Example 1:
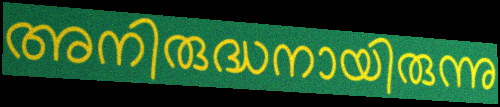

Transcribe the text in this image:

അനിരുദ്ധനായിരുന്നു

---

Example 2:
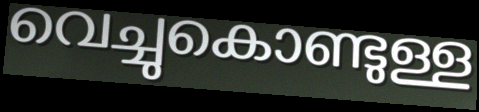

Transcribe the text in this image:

വെച്ചുകൊണ്ടുള്ള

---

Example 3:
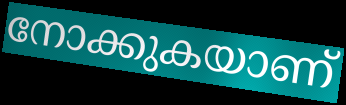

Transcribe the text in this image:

നോക്കുകയാണ്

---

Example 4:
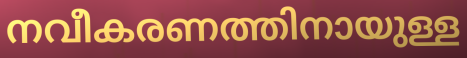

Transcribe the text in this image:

നവീകരണത്തിനായുള്ള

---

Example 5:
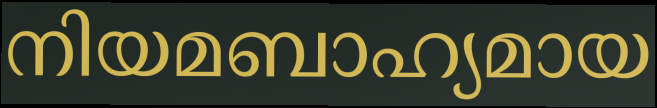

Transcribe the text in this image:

നിയമബാഹ്യമായ